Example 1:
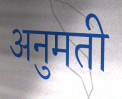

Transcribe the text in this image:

अनुमती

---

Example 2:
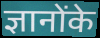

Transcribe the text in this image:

ज्ञानोंके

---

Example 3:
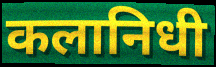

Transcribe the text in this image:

कलानिधी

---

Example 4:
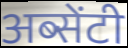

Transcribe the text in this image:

अब्सेंटी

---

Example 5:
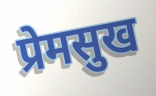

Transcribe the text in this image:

प्रेमसुख